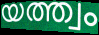
യത്ത്വം